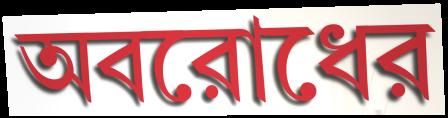
অবরোধের